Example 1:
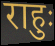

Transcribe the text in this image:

राहुः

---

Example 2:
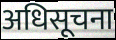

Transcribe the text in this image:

अधिसूचना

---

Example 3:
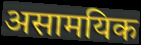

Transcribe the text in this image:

असामयिक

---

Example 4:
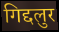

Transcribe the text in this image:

गिद्दलुर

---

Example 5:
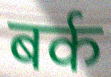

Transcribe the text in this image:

बर्क